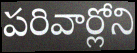
పరివార్లోని